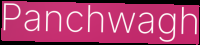
Panchwagh